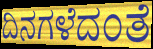
ದಿನಗಳೆದಂತೆ